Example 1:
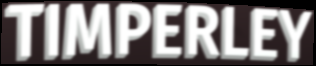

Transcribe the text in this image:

TIMPERLEY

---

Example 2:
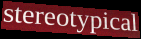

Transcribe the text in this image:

stereotypical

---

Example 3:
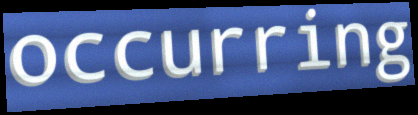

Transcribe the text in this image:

occurring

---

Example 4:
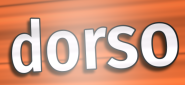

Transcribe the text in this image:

dorso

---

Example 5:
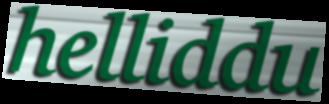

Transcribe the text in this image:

helliddu